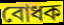
বোধক